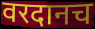
वरदानच